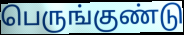
பெருங்குண்டு